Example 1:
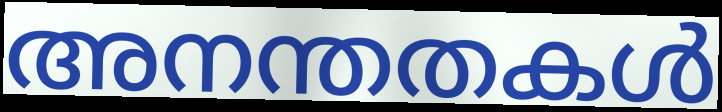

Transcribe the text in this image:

അനന്തതകൾ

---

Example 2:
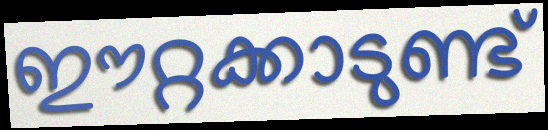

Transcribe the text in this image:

ഈറ്റക്കാടുണ്ട്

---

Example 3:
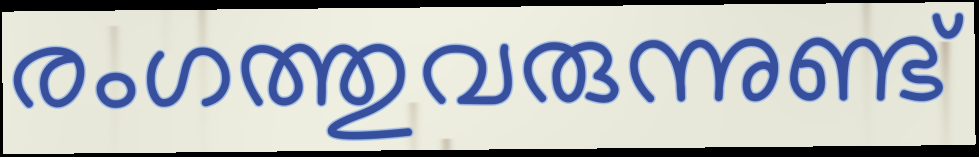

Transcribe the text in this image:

രംഗത്തുവരുന്നുണ്ട്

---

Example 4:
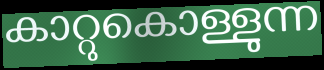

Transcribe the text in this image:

കാറ്റുകൊള്ളുന്ന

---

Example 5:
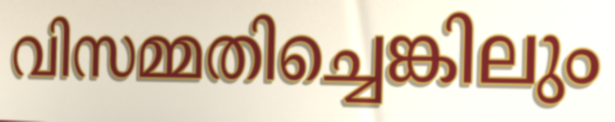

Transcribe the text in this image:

വിസമ്മതിച്ചെങ്കിലും